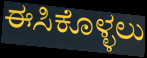
ಈಸಿಕೊಳ್ಳಲು